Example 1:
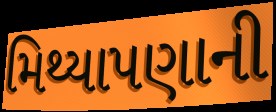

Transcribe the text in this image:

મિથ્યાપણાની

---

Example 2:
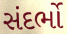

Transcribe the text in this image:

સંદર્ભો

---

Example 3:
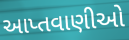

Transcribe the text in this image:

આપ્તવાણીઓ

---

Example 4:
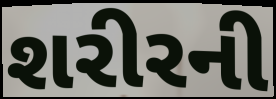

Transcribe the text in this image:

શરીરની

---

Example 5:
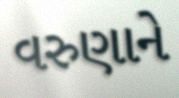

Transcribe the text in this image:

વરુણાને